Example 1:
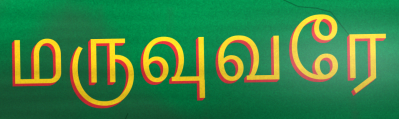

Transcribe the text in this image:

மருவுவரே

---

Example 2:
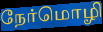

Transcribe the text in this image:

நேர்மொழி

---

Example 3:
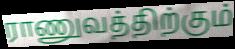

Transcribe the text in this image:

ராணுவத்திற்கும்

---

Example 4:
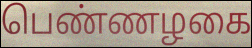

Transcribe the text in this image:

பெண்ணழகை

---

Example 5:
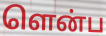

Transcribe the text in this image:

ளென்ப